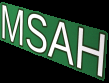
MSAH